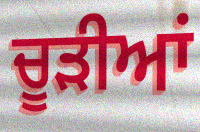
ਚੂੜੀਆਂ